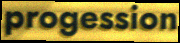
progession